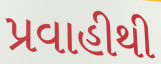
પ્રવાહીથી